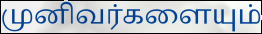
முனிவர்களையும்